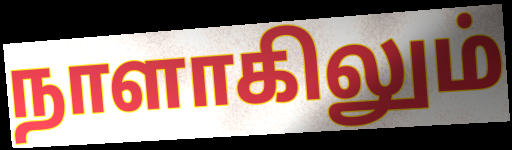
நாளாகிலும்